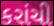
કરાંચી